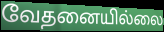
வேதனையில்லை